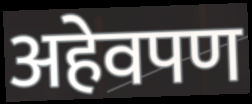
अहेवपण